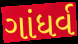
ગાંધર્વ